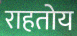
राहतोय